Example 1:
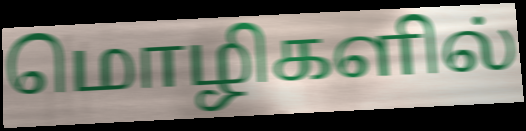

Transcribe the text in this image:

மொழிகளில்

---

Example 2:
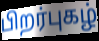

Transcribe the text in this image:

பிறர்புகழ்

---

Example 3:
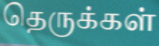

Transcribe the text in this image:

தெருக்கள்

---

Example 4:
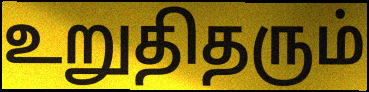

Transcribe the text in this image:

உறுதிதரும்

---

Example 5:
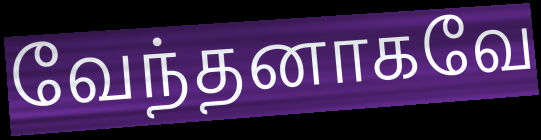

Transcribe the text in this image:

வேந்தனாகவே